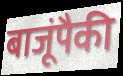
बाजूंपैकी